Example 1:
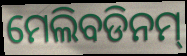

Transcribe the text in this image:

ମେଲିବଡିନମ୍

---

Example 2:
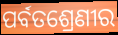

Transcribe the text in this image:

ପର୍ବତଶ୍ରେଣୀର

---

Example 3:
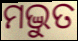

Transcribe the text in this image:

ମଦ୍ଭୁତ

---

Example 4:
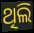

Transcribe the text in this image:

ଥିଲି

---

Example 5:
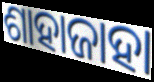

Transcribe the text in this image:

ଶାହାଜାହା